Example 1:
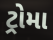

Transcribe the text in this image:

ટ્રોમા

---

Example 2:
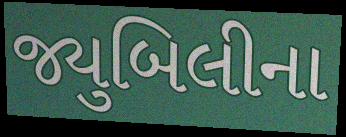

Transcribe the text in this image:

જ્યુબિલીના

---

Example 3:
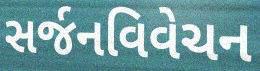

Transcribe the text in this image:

સર્જનવિવેચન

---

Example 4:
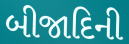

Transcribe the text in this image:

બીજાદિની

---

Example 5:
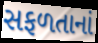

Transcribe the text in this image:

સફળતાનાં